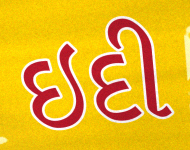
ઇદી